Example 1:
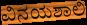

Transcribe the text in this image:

ವಿನಯಶಾಲಿ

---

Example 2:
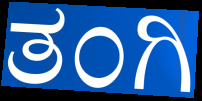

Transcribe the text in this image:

ತಂಗಿ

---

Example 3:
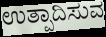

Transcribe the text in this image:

ಉತ್ಪಾದಿಸುವ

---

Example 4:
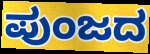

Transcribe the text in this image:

ಪುಂಜದ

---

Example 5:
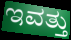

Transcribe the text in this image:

ಇವತ್ತು